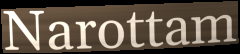
Narottam